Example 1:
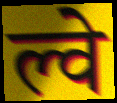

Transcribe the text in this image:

ल्वे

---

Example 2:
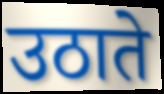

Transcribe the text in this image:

उठाते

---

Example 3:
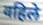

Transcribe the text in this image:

वहिले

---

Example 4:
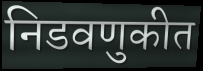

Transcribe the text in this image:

निडवणुकीत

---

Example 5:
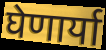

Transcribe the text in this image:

घेणार्या